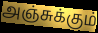
அஞ்சுக்கும்